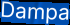
Dampa